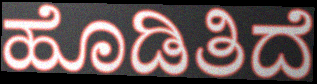
ಹೊಡಿತಿದೆ